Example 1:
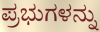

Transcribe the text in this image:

ಪ್ರಭುಗಳನ್ನು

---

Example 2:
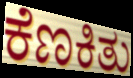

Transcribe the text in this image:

ಕೆಣಕಿತು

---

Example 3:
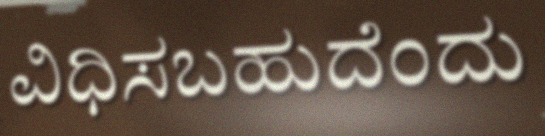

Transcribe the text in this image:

ವಿಧಿಸಬಹುದೆಂದು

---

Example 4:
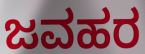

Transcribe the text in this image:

ಜವಹರ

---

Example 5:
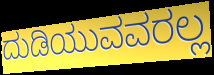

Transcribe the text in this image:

ದುಡಿಯುವವರಲ್ಲ